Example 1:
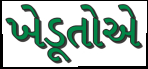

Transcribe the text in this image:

ખેડૂતોએ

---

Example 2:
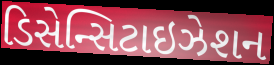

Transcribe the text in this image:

ડિસેન્સિટાઇઝેશન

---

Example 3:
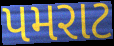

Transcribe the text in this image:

પમરાટ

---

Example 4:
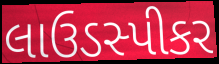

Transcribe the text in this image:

લાઉડસ્પીકર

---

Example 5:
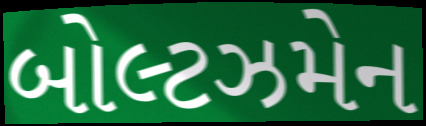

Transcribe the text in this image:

બોલ્ટઝમેન